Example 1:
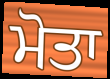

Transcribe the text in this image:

ਮੋਤਾ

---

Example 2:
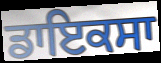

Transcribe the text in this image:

ਡਾਇਕਸਾ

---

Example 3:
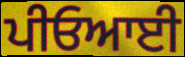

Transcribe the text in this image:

ਪੀਓਆਈ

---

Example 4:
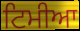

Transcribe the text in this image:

ਟਿਮੀਆ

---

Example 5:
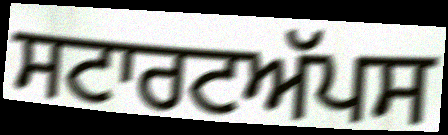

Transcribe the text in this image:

ਸਟਾਰਟਅੱਪਸ